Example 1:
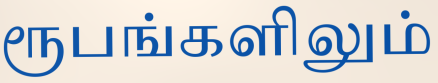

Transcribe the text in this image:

ரூபங்களிலும்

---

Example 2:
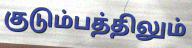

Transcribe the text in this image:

குடும்பத்திலும்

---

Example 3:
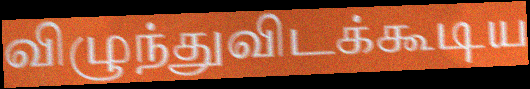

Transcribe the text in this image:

விழுந்துவிடக்கூடிய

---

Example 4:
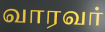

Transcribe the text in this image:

வாரவர்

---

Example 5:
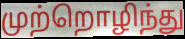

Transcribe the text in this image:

முற்றொழிந்து